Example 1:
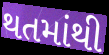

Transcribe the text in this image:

થતમાંથી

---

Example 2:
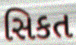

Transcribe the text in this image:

સિકત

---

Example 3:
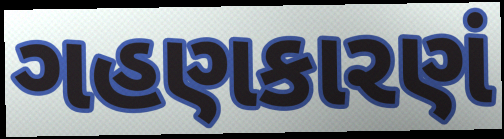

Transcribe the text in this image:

ગહણકારણં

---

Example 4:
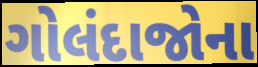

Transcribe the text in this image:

ગોલંદાજોના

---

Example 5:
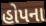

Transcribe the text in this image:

હોપના